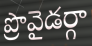
ప్రొవైడర్గా